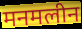
मनमलीन